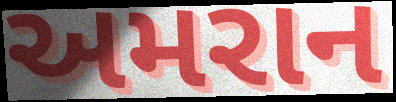
અમરાન